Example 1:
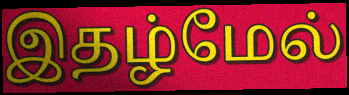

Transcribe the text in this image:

இதழ்மேல்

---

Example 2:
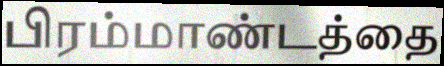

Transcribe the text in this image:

பிரம்மாண்டத்தை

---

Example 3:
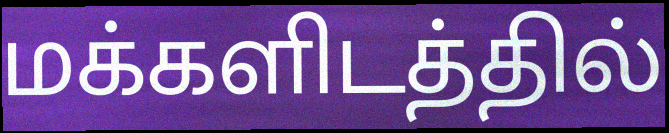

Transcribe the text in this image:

மக்களிடத்தில்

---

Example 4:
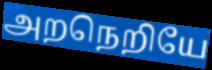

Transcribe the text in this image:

அறநெறியே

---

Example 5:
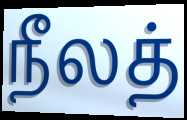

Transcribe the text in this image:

நீலத்